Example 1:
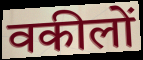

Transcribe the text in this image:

वकीलों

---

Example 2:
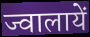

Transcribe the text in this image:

ज्वालायें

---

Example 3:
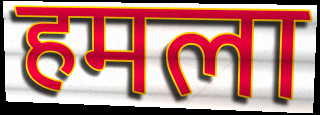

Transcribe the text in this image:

हमला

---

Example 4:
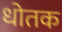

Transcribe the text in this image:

धोतक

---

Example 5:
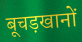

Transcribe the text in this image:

बूचड़खानों